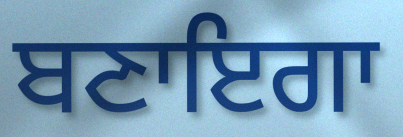
ਬਣਾਇਗਾ